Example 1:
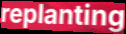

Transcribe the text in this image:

replanting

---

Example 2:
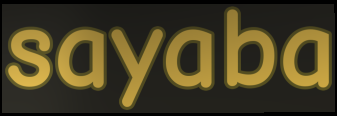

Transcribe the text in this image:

sayaba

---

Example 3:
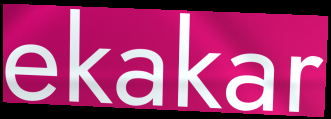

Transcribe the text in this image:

ekakar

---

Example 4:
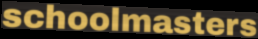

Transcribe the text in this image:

schoolmasters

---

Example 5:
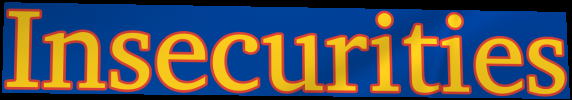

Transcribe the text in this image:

Insecurities